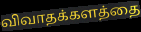
விவாதக்களத்தை